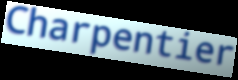
Charpentier